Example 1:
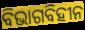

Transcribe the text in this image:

ବିଭାଗବିହୀନ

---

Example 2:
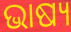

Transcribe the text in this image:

ଭାଷ୍ୟ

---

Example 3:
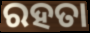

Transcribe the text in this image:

ରହତା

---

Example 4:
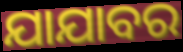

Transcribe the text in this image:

ଯାଯାବର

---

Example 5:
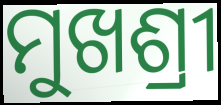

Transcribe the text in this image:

ମୁଖଶ୍ରୀ